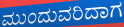
ಮುಂದುವರಿದಾಗ